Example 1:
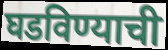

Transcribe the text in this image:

घडविण्याची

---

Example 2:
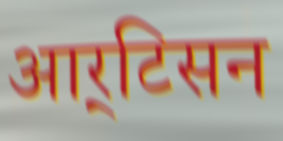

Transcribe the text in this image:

आर्टिसन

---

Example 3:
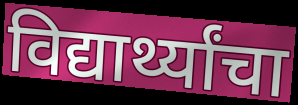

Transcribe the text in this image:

विद्यार्थ्यांचा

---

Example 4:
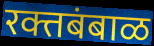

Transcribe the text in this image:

रक्तबंबाळ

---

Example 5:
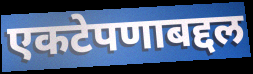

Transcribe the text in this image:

एकटेपणाबद्दल